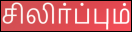
சிலிர்ப்பும்